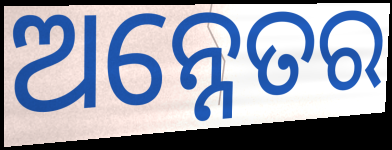
ଅନ୍ନେତର